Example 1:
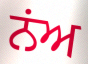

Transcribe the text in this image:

ਨਂਅ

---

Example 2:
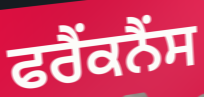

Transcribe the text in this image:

ਫਰੈਂਕਨੈਂਸ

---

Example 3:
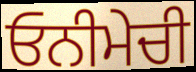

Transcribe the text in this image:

ਓਨੀਮੇਚੀ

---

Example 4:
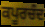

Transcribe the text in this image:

ਕਪੂਰਚੰਦ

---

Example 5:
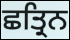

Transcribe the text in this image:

ਛਤ੍ਰਿਨ